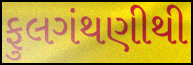
ફુલગંથણીથી